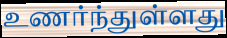
உணர்ந்துள்ளது